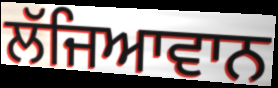
ਲੱਜਿਆਵਾਨ